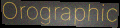
Orographic